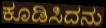
ಕೂಡಿಸಿದನು